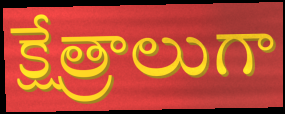
క్షేత్రాలుగా